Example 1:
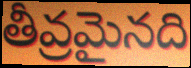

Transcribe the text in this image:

తీవ్రమైనది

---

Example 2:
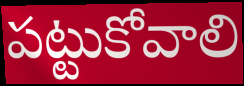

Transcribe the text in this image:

పట్టుకోవాలి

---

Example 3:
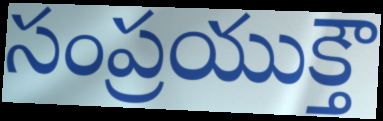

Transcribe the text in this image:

సంప్రయుక్తౌ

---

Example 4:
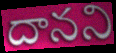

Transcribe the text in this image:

దానని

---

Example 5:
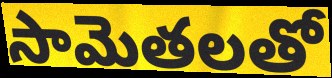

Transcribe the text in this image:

సామెతలతో